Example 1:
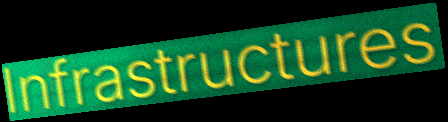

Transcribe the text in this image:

Infrastructures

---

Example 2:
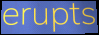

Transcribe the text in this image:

erupts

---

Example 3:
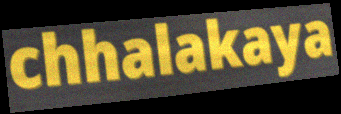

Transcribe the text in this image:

chhalakaya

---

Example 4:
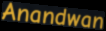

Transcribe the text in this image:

Anandwan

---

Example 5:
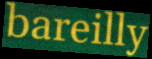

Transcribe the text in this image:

bareilly